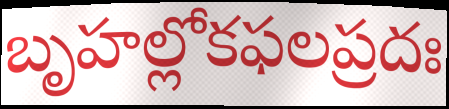
బృహల్లోకఫలప్రదః